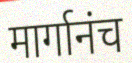
मार्गानंच